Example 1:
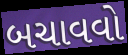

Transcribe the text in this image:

બચાવવો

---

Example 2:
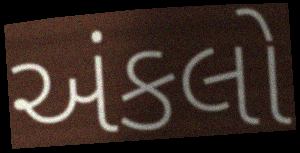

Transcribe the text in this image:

અંકલો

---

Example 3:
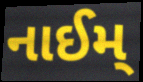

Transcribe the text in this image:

નાઈમ્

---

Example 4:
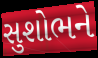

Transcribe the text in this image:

સુશોભને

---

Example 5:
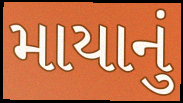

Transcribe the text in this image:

માયાનું